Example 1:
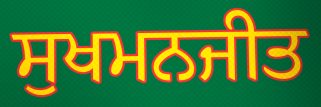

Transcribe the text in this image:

ਸੁਖਮਨਜੀਤ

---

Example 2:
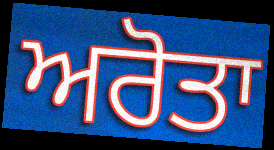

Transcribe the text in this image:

ਅਰੋਤਾ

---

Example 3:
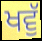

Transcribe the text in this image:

ਖਵੁੱ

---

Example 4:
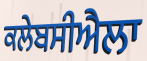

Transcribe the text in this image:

ਕਲੇਬਸੀਐਲਾ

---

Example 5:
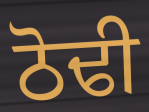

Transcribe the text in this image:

ਠੋਢੀ